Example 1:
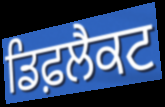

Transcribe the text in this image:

ਡਿਫ਼ਲੈਕਟ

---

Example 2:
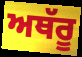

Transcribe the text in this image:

ਅਥੱਰੂ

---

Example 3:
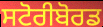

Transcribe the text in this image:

ਸਟੋਰੀਬੋਰਡ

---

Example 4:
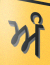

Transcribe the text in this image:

ਅੰ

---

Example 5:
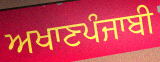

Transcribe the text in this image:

ਅਖਾਣਪੰਜਾਬੀ